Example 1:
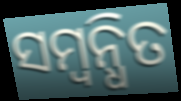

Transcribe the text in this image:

ସମ୍ଵନ୍ଧିତ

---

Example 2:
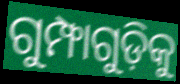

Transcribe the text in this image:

ଗୁମ୍ଫାଗୁଡ଼ିକୁ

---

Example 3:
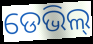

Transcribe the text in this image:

ଡେଭିଲ୍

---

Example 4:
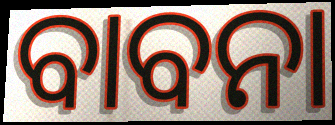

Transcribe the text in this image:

ବାବନା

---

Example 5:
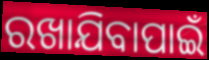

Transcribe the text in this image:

ରଖାଯିବାପାଇଁ